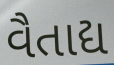
વૈતાદ્ય